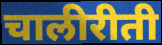
चालीरीती